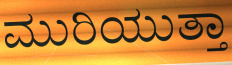
ಮುರಿಯುತ್ತಾ